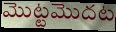
మొట్టమొదట